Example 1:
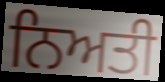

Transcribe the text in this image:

ਨਿਅਤੀ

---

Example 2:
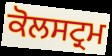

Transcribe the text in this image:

ਕੋਲਸਟ੍ਰਮ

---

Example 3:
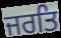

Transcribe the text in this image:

ਜਰਤਿ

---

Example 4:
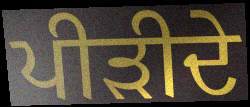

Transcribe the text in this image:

ਪੀੜੀਦੇ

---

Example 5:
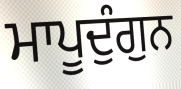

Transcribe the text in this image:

ਮਾਪੂਦੁੰਗੁਨ